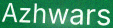
Azhwars